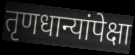
तृणधान्यांपेक्षा